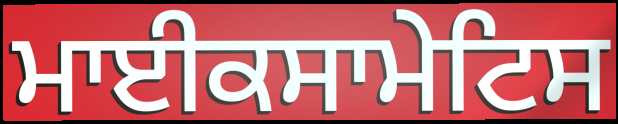
ਮਾਈਕਸਾਮੇਟਿਸ